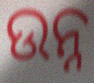
ଉନ୍ନ